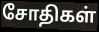
சோதிகள்